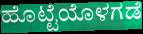
ಹೊಟ್ಟೆಯೊಳಗಡೆ